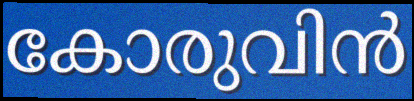
കോരുവിൻ